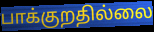
பாக்குறதில்லை